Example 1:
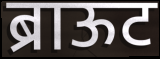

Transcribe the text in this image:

ब्राऊट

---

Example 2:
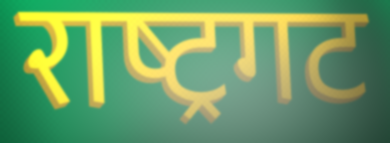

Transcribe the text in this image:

राष्ट्रगट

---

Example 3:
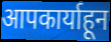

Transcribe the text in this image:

आपकार्याहून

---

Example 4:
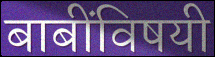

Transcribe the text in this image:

बाबींविषयी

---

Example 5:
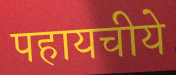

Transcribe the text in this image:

पहायचीये